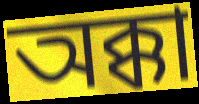
অক্কা